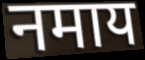
नमाय